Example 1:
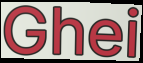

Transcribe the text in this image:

Ghei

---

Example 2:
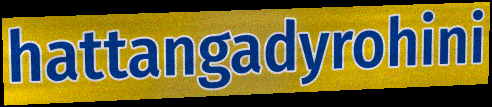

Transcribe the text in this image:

hattangadyrohini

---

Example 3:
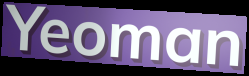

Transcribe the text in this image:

Yeoman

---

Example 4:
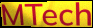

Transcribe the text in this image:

MTech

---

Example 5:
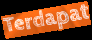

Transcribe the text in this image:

Terdapat